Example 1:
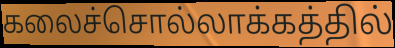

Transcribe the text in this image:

கலைச்சொல்லாக்கத்தில்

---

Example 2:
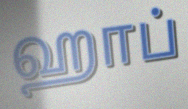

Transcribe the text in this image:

ஹாப்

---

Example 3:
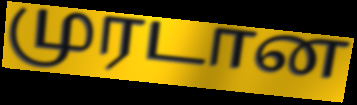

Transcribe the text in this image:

முரடான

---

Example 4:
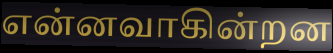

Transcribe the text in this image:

என்னவாகின்றன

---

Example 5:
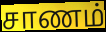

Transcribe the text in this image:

சாணம்